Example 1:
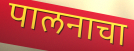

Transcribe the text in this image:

पालनाचा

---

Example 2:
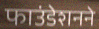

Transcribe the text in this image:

फाउंडेशनने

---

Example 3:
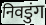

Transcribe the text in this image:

निवडुंग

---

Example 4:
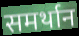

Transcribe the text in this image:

समर्थान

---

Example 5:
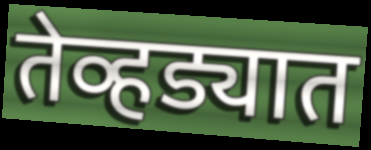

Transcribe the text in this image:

तेव्हड्यात